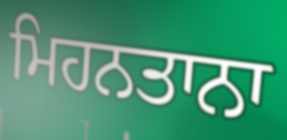
ਮਿਹਨਤਾਨਾ